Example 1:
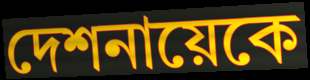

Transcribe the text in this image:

দেশনায়েকে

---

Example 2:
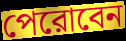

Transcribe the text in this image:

পেরোবেন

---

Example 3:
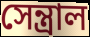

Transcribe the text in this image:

সেন্ত্রাল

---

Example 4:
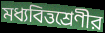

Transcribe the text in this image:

মধ্যবিত্তশ্রেণীর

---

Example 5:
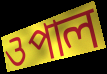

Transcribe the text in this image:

ওপাল